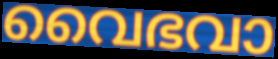
വൈഭവാ